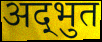
अद्‌भुत